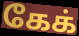
கேக்